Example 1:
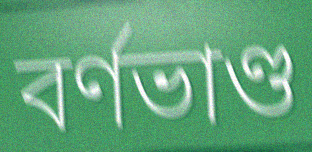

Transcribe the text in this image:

বর্ণভাণ্ড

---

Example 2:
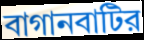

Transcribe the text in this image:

বাগানবাটির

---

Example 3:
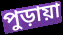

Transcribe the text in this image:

পুড়ায়া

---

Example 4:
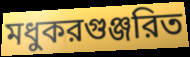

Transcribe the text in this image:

মধুকরগুঞ্জরিত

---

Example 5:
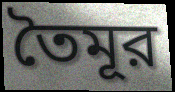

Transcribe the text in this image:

তৈমূর